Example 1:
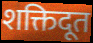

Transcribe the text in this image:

शक्तिदूत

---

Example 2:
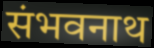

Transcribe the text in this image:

संभवनाथ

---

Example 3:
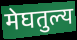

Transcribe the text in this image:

मेघतुल्य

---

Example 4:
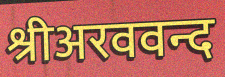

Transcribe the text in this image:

श्रीअरववन्द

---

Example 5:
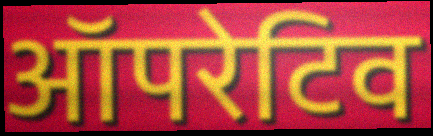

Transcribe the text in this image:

ऑपरेटिव